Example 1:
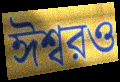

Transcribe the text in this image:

ঈশ্বরও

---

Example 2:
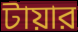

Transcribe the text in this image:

টায়ার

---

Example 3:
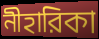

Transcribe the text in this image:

নীহারিকা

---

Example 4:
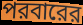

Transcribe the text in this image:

পরবারের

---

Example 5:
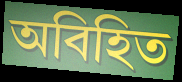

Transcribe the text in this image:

অবিহিত